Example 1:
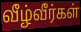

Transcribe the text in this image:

வீழ்வீர்கள்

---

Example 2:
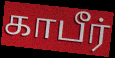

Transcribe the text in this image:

காபீர்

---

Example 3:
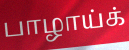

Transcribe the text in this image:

பாழாய்க்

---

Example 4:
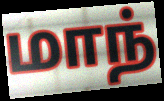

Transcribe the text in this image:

மாந்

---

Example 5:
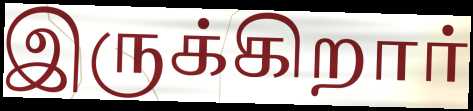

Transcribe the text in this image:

இருக்கிறார்